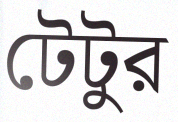
টেটুর